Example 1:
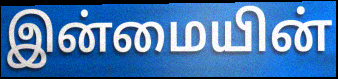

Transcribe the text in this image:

இன்மையின்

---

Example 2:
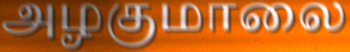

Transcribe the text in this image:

அழகுமாலை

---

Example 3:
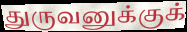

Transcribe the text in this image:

துருவனுக்குக்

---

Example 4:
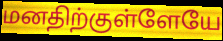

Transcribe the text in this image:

மனதிற்குள்ளேயே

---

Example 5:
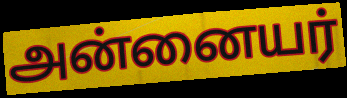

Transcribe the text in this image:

அன்னையர்